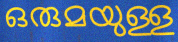
ഒരുമയുള്ള